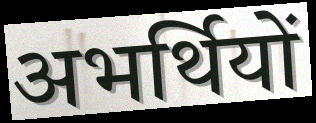
अभर्थियों